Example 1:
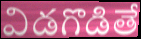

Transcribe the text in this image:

విడగొడితే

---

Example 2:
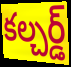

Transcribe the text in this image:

కల్చర్డ్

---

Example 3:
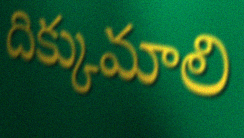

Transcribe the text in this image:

దిక్కుమాలి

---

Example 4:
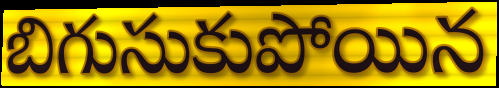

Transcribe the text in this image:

బిగుసుకుపోయిన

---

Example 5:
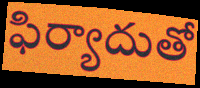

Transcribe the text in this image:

ఫిర్యాదుతో